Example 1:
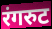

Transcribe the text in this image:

रंगरुट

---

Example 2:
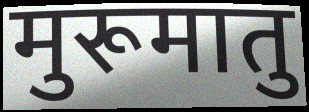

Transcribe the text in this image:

मुरूमातु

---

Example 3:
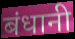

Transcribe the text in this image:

बंधानी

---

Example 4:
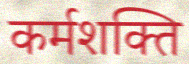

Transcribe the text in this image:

कर्मशक्ति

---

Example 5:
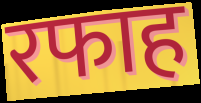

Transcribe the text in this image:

रफाह